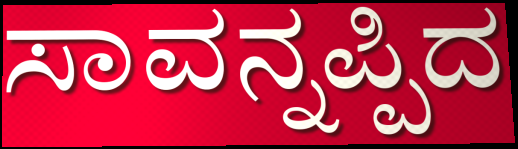
ಸಾವನ್ನಪ್ಪಿದ